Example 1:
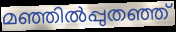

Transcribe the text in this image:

മഞ്ഞിൽപ്പുതഞ്ഞ്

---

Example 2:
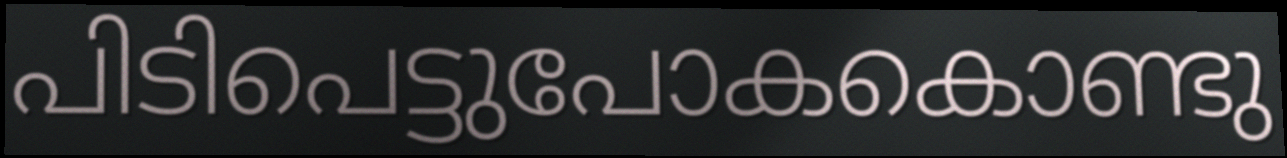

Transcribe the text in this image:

പിടിപെട്ടുപോകകൊണ്ടു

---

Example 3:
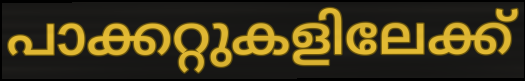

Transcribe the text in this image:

പാക്കറ്റുകളിലേക്ക്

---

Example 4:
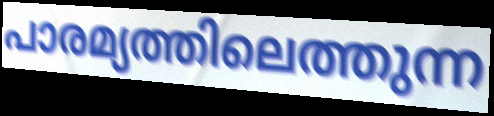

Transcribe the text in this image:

പാരമ്യത്തിലെത്തുന്ന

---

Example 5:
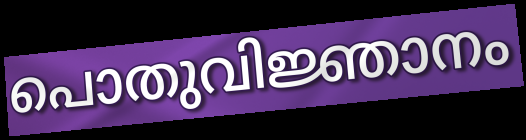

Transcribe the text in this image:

പൊതുവിജ്ഞാനം